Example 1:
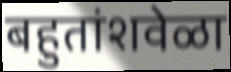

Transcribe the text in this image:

बहुतांशवेळा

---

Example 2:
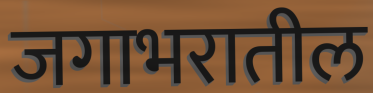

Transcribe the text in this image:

जगाभरातील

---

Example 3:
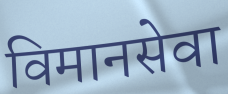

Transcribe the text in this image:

विमानसेवा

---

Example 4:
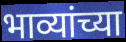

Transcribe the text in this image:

भाव्यांच्या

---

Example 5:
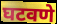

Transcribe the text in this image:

घटवणे